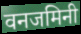
वनजमिनी